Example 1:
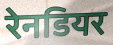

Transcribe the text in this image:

रेनडियर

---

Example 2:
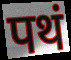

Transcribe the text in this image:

पथं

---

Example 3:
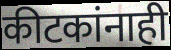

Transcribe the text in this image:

कीटकांनाही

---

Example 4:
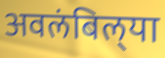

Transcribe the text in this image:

अवलंबिल्या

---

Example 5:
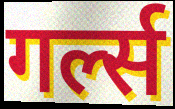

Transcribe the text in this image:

गर्ल्स